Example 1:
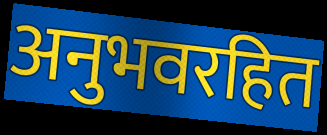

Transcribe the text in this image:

अनुभवरहित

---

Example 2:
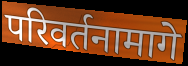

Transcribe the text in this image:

परिवर्तनामागे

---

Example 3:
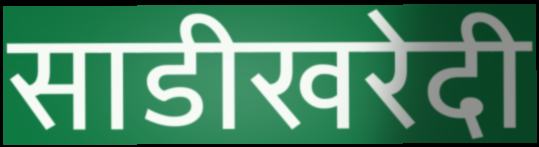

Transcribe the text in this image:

साडीखरेदी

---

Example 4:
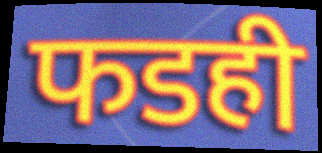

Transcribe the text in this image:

फडही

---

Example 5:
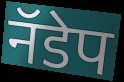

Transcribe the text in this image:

नॅडेप